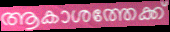
ആകാശത്തേക്ക്